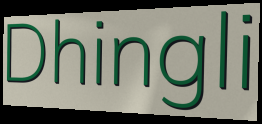
Dhingli